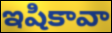
ఇషికావా